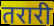
तरारी